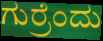
ಗುರ್ರೆಂದು